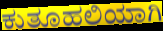
ಕುತೂಹಲಿಯಾಗಿ